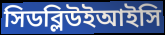
সিডব্লিউইআইসি